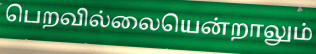
பெறவில்லையென்றாலும்